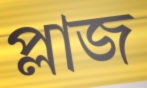
প্লাজ